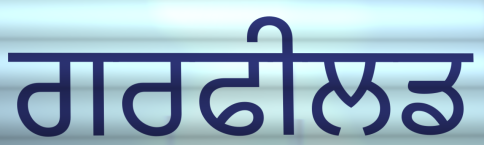
ਗਰਫੀਲਡ